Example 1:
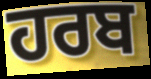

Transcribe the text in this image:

ਹਰਬ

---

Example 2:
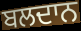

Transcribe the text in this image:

ਬਲਦਾਨ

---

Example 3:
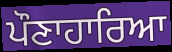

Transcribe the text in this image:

ਪੌਣਾਹਾਰਿਆ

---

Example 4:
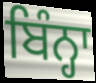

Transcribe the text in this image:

ਬਿੰਨ੍ਹਾ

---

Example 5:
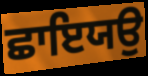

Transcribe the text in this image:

ਛਾਇਯਉ